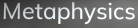
Metaphysics